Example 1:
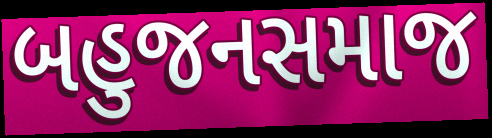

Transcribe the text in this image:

બહુજનસમાજ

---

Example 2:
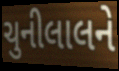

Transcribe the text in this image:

ચુનીલાલને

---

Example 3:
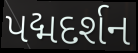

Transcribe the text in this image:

પદ્મદર્શન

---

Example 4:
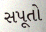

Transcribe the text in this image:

સપૂતો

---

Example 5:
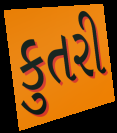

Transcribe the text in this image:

કુતરી